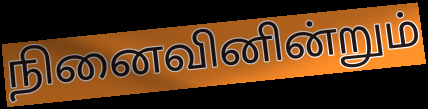
நினைவினின்றும்